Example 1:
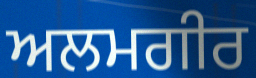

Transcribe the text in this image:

ਅਲਮਗੀਰ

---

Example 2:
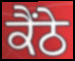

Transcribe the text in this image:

ਕੈਂਠੇ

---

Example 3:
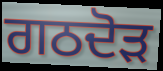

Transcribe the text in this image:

ਗਠਦੋੜ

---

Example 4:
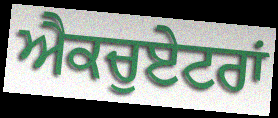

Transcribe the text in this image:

ਐਕਚੁਏਟਰਾਂ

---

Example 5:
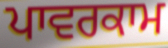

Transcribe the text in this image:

ਪਾਵਰਕਾਮ